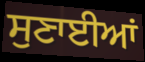
ਸੁਣਾਈਆਂ